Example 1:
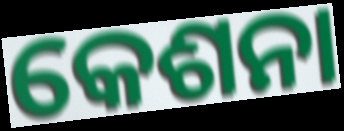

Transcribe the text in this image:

କେଶନା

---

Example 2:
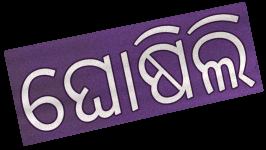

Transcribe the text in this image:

ଘୋଷିଲି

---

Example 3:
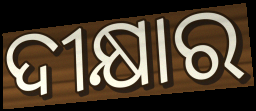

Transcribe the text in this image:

ଦୀକ୍ଷାର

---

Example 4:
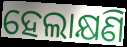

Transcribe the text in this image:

ହେଲାକ୍ଷଣି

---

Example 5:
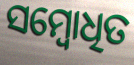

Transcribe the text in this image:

ସମ୍ବୋଧିତ